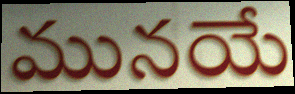
మునయే